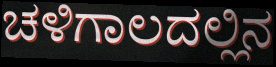
ಚಳಿಗಾಲದಲ್ಲಿನ